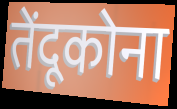
तेंदूकोना